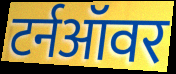
टर्नऑवर